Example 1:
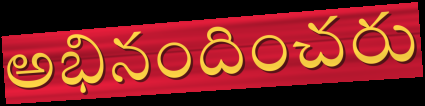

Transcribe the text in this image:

అభినందించరు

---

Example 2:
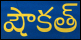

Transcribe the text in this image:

షౌకత్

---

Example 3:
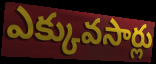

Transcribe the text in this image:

ఎక్కువసార్లు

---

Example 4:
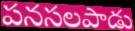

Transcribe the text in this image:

పనసలపాడు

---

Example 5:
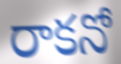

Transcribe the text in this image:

రాకనో